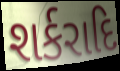
શર્કરાદિ